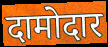
दामोदार